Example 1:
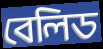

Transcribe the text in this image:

বেলিড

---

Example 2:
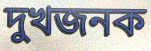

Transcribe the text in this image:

দুখজনক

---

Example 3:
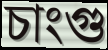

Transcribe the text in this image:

চাংগু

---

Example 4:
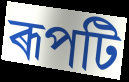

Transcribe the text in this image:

ৰূপটি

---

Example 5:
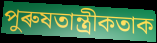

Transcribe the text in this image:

পুৰুষতান্ত্ৰীকতাক